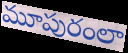
మూపురంలా